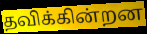
தவிக்கின்றன